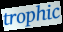
trophic